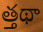
త్తథా